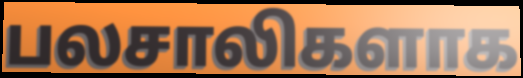
பலசாலிகளாக